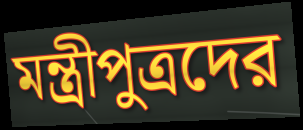
মন্ত্রীপুত্রদের